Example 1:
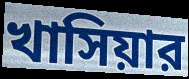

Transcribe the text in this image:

খাসিয়ার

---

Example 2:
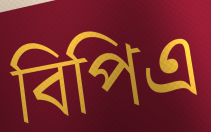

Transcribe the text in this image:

বিপিএ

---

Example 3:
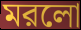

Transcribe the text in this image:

মরলো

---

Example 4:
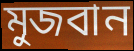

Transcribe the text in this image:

মুজবান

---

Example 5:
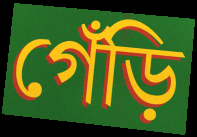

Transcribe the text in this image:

গেঁড়ি